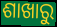
ଶାଖାରୁ